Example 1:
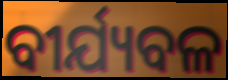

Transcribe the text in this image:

ବୀର୍ଯ୍ୟବଳ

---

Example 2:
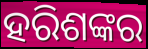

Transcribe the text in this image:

ହରିଶଙ୍କର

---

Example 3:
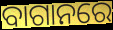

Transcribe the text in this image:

ବାଗାନରେ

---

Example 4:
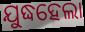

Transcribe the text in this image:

ଯୁଦ୍ଧହେଲା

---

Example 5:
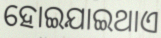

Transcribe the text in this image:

ହୋଇଯାଇଥାଏ